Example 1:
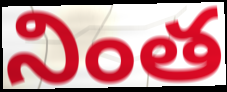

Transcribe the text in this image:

నింత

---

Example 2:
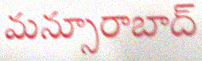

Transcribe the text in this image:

మన్సూరాబాద్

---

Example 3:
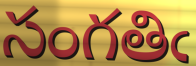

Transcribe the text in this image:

సంగతిఁ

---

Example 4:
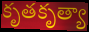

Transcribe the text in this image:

కృతకృత్యా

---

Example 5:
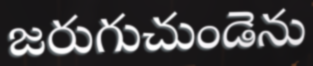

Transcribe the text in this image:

జరుగుచుండెను